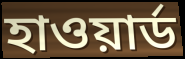
হাওয়ার্ড